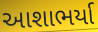
આશાભર્યા